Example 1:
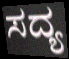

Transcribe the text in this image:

ಸದ್ಯ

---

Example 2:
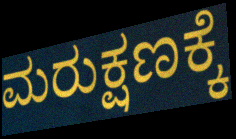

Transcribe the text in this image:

ಮರುಕ್ಷಣಕ್ಕೆ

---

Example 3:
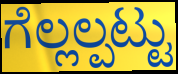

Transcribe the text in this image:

ಗೆಲ್ಲಲ್ಪಟ್ಟು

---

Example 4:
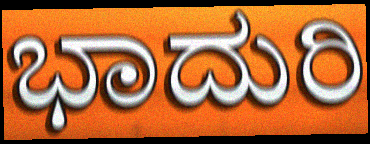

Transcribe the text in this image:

ಭಾದುರಿ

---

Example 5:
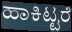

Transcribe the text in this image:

ಹಾಕಿಟ್ಟರೆ